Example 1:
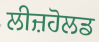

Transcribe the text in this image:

ਲੀਜ਼ਹੋਲਡ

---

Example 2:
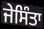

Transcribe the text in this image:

ਜੇਸਿੰਤਾ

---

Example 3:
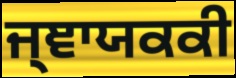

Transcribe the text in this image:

ਜ੍ਞਾਯਕਕੀ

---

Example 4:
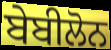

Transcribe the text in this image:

ਬੇਬੀਲੋਨ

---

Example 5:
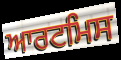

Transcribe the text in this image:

ਆਰਟਮਿਸ